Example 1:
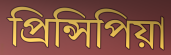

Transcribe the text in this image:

প্ৰিন্সিপিয়া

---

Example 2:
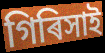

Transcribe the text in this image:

গিৰিসাই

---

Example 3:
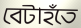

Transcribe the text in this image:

বেটাহঁতে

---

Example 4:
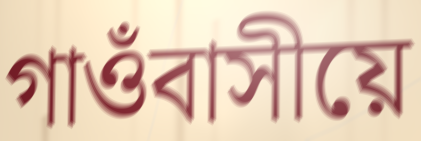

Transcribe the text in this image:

গাওঁবাসীয়ে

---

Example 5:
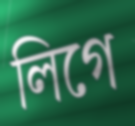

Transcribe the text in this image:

লিগে